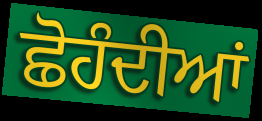
ਛੋਹੰਦੀਆਂ